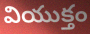
వియుక్తం